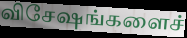
விசேஷங்களைச்